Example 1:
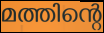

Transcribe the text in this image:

മത്തിന്റെ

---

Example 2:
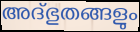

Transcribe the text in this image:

അദ്ഭുതങ്ങളും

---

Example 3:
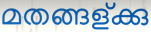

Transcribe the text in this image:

മതങ്ങള്ക്കു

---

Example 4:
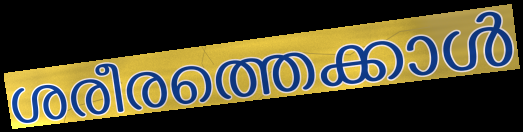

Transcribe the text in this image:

ശരീരത്തെക്കാൾ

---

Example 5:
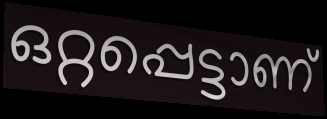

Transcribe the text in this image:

ഒറ്റപ്പെട്ടാണ്